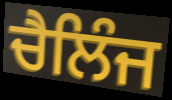
ਚੈਲਿੰਜ